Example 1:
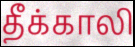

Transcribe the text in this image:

தீக்காலி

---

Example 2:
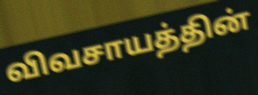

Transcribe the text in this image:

விவசாயத்தின்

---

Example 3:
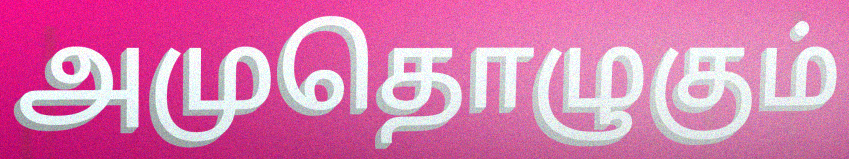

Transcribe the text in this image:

அமுதொழுகும்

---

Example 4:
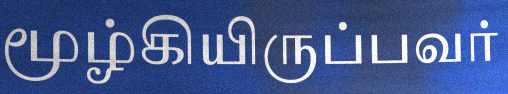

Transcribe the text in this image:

மூழ்கியிருப்பவர்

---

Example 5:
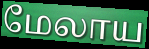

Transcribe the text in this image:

மேலாய